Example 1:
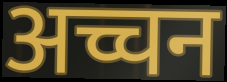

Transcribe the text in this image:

अच्चन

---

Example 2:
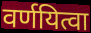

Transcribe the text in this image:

वर्णयित्वा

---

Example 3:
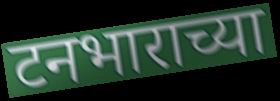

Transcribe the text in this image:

टनभाराच्या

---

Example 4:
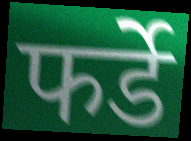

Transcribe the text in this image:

फर्डे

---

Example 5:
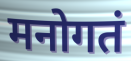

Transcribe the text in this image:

मनोगतं